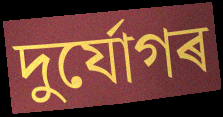
দুৰ্যোগৰ